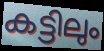
കട്ടിലും